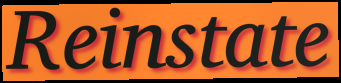
Reinstate